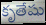
కృతేషు